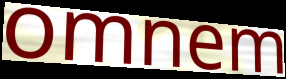
omnem